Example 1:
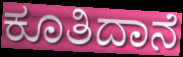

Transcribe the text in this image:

ಕೂತಿದಾನೆ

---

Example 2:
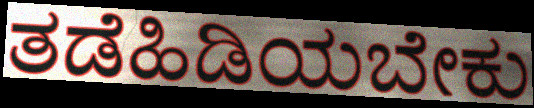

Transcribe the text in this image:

ತಡೆಹಿಡಿಯಬೇಕು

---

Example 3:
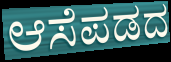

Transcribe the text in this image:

ಆಸೆಪಡದ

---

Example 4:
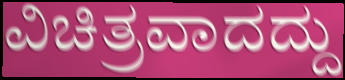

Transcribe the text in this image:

ವಿಚಿತ್ರವಾದದ್ದು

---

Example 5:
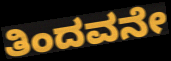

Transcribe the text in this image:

ತಿಂದವನೇ